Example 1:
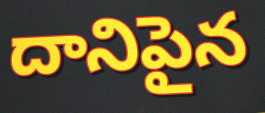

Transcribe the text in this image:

దానిపైన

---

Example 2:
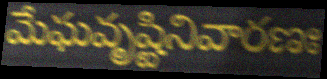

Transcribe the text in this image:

మేఘవృష్టినివారణః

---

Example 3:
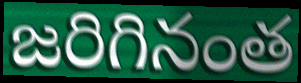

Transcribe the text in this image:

జరిగినంత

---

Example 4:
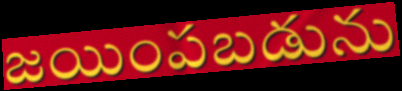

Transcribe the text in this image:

జయింపబడును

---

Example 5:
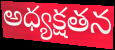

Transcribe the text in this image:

అధ్యక్షతన